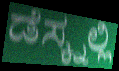
ಡೆಸ್ಕ್ನಲ್ಲಿ